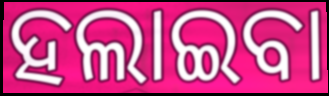
ହଲାଇବା